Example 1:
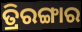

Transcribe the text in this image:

ତ୍ରିରଙ୍ଗାର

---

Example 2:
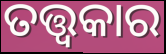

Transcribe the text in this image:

ତତ୍ତ୍ୱକାର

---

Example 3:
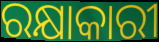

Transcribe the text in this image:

ରକ୍ଷାକାରୀ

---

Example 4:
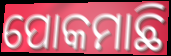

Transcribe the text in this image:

ପୋକମାଛି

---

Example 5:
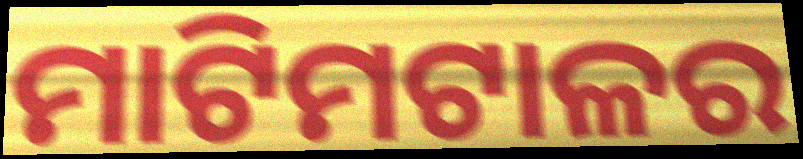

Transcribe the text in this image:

ମାଟିମଟାଳର